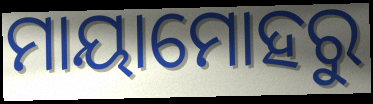
ମାୟାମୋହରୁ